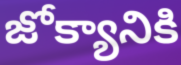
జోక్యానికి